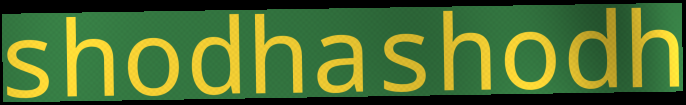
shodhashodh